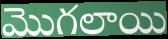
మొగలాయి